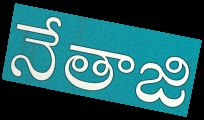
నేతాజి